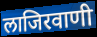
लाजिरवाणी